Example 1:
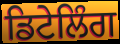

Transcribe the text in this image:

ਡਿਟੇਲਿੰਗ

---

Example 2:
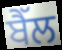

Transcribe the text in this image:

ਬੈੱਲ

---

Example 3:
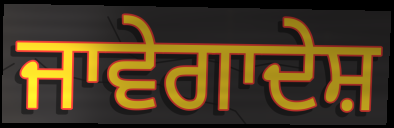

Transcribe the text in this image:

ਜਾਵੇਗਾਦੇਸ਼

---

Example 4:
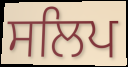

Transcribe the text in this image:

ਸਲਿਪ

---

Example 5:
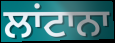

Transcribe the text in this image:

ਲਾਂਟਾਨਾ